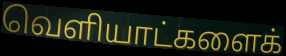
வெளியாட்களைக்